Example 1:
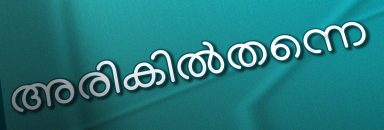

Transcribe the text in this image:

അരികിൽതന്നെ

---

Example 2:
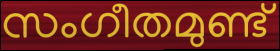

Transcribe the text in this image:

സംഗീതമുണ്ട്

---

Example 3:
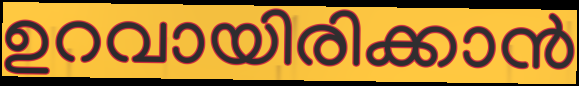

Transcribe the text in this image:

ഉറവായിരിക്കാൻ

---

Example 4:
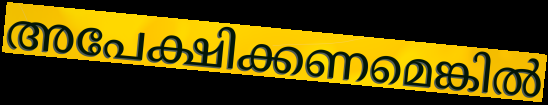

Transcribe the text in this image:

അപേക്ഷിക്കണമെങ്കിൽ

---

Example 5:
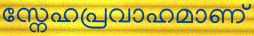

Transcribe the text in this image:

സ്നേഹപ്രവാഹമാണ്